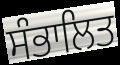
ਸੰਭਾਲਿਤ